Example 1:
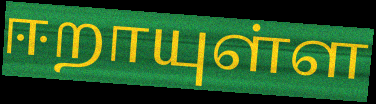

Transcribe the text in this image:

ஈறாயுள்ள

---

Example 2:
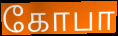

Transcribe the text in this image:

கோபா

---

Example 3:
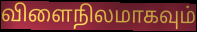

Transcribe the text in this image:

விளைநிலமாகவும்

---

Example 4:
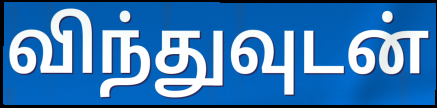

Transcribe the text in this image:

விந்துவுடன்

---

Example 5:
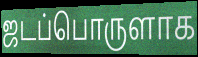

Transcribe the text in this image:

ஜடப்பொருளாக